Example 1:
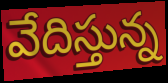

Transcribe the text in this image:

వేదిస్తున్న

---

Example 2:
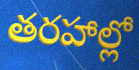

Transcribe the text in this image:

తరహాల్లో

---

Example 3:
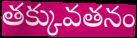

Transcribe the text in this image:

తక్కువతనం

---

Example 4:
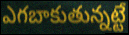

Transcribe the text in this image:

ఎగబాకుతున్నట్టే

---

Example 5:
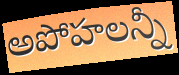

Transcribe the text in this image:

అపోహలన్నీ